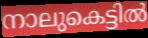
നാലുകെട്ടിൽ